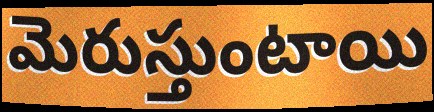
మెరుస్తుంటాయి